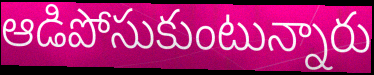
ఆడిపోసుకుంటున్నారు